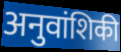
अनुवांशिकी